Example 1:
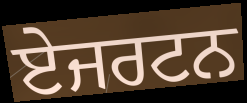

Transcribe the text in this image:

ਏਜਰਟਨ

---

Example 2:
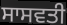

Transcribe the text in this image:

ਸਾਸਵਤੀ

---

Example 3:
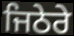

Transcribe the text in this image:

ਜਿਠੇਰੇ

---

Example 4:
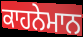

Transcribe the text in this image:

ਕਾਹਨੇਮਾਨ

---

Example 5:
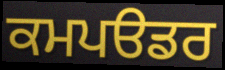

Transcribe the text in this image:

ਕਮਪੳਡਰ